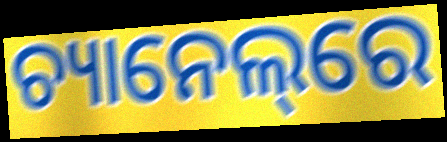
ଚ୍ୟାନେଲ୍‌ରେ